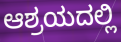
ಆಶ್ರಯದಲ್ಲಿ